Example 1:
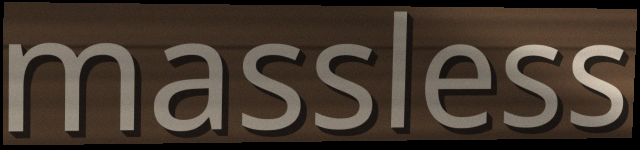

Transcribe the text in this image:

massless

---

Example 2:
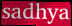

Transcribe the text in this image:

sadhya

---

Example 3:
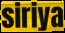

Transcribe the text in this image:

siriya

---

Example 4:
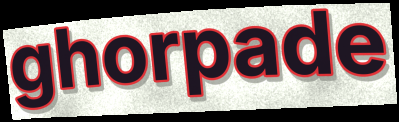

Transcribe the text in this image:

ghorpade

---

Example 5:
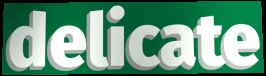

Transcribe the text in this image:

delicate